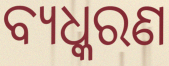
ବ୍ୟଧ୍କରଣ